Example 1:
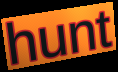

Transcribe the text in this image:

hunt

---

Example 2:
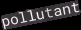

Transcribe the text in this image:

pollutant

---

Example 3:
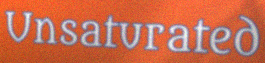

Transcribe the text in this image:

Unsaturated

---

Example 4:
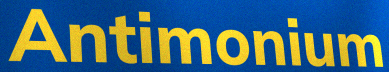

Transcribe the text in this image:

Antimonium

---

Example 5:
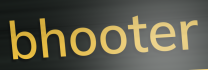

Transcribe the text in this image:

bhooter